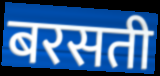
बरसती